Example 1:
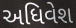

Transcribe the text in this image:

અધિવેશ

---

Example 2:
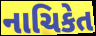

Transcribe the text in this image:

નાચિકેત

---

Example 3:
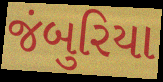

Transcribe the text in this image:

જંબુરિયા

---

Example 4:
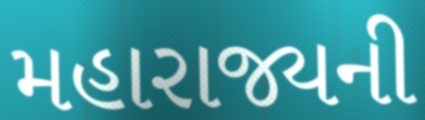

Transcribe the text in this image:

મહારાજ્યની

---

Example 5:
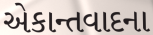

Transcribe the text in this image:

એકાન્તવાદના